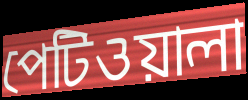
পেটিওয়ালা